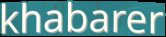
khabarer